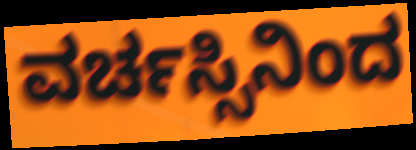
ವರ್ಚಸ್ಸಿನಿಂದ